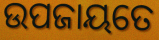
ଉପଜାୟତେ